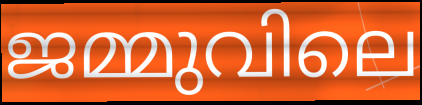
ജമ്മുവിലെ